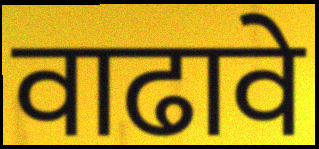
वाढावे